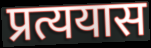
प्रत्ययास